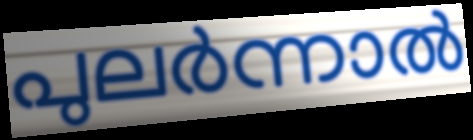
പുലർന്നാൽ